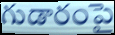
గుడారంపై